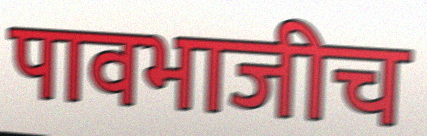
पावभाजीच